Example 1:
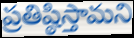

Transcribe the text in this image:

ప్రతిష్ఠిస్తామని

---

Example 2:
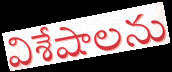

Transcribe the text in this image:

విశేషాలను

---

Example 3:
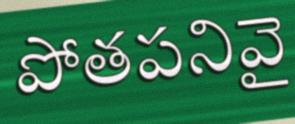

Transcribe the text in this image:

పోతపనివై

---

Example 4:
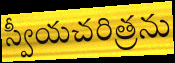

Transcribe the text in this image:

స్వీయచరిత్రను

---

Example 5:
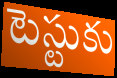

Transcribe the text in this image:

టెస్టుకు